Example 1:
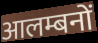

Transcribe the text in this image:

आलम्बनों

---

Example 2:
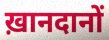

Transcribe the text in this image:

ख़ानदानों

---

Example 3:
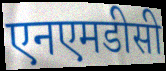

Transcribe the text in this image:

एनएमडीसी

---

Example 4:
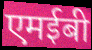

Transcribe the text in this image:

एमईबी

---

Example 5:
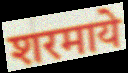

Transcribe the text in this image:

शरमाये